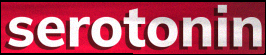
serotonin